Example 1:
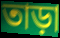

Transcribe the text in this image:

তাড়া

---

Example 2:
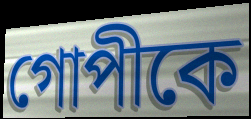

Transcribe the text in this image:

গোপীকে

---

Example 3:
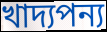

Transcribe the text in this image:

খাদ্যপন্য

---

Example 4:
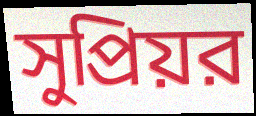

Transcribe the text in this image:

সুপ্রিয়র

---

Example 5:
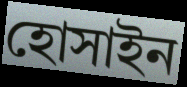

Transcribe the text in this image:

হোসাইন